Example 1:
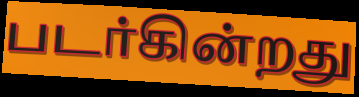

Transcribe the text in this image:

படர்கின்றது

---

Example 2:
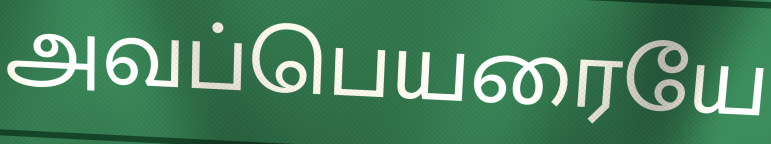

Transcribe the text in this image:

அவப்பெயரையே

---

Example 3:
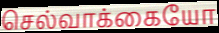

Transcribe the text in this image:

செல்வாக்கையோ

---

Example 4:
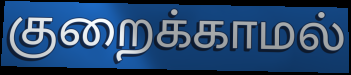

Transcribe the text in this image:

குறைக்காமல்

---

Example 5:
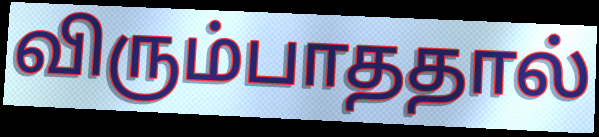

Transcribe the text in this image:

விரும்பாததால்